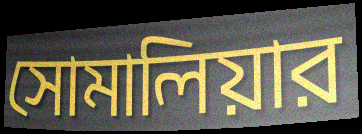
সোমালিয়ার